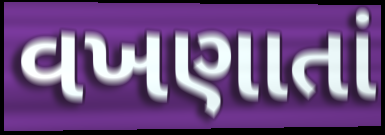
વખણાતાં